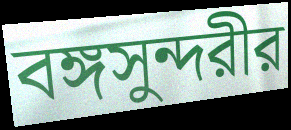
বঙ্গসুন্দরীর